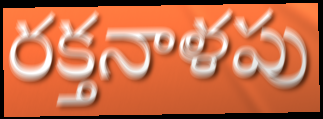
రక్తనాళపు